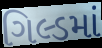
ગિલ્ડમાં